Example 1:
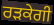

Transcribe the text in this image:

ਰੜਕੇਗੀ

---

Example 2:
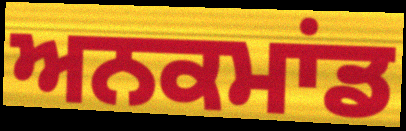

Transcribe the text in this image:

ਅਨਕਮਾਂਡ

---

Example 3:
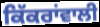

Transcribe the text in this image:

ਕਿੱਕਰਾਂਵਾਲੀ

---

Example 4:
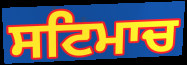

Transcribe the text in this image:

ਸਟਿਮਾਚ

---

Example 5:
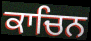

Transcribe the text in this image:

ਕਾਚਿਨ